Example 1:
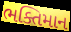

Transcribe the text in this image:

ભક્તિમાન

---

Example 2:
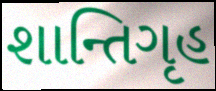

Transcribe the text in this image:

શાન્તિગૃહ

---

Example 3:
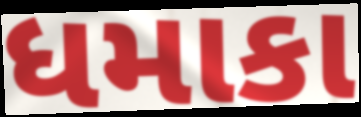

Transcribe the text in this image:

ધમાકા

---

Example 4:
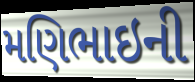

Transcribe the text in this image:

મણિભાઇની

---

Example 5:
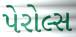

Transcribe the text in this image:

પેરોલ્સ